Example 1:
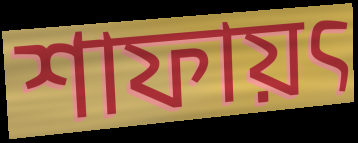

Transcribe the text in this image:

শাফায়ৎ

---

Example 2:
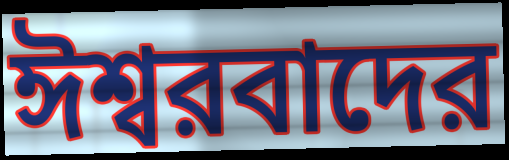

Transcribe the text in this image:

ঈশ্বরবাদের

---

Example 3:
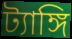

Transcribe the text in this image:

ট্যাঙ্গি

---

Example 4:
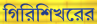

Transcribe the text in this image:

গিরিশিখরের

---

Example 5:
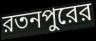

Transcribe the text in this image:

রতনপুরের